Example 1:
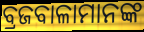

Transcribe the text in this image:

ବ୍ରଜବାଳାମାନଙ୍କ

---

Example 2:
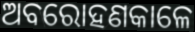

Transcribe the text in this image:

ଅବରୋହଣକାଳେ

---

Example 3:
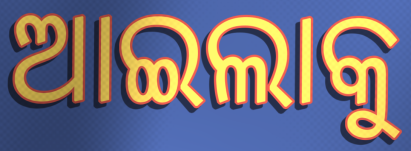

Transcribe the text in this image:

ଆଇଲାକୁ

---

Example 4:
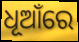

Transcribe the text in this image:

ଧୂଆଁରେ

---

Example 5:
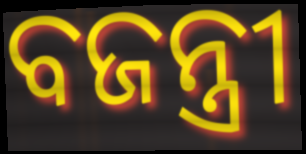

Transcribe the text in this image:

ବଜନ୍ତ୍ରୀ